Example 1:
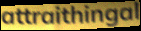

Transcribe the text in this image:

attraithingal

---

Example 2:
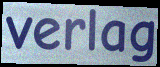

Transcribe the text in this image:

verlag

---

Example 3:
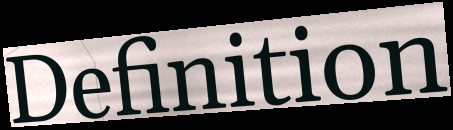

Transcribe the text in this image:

Definition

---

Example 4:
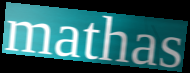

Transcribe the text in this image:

mathas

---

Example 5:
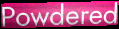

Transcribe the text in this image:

Powdered